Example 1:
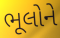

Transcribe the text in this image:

ભૂલોને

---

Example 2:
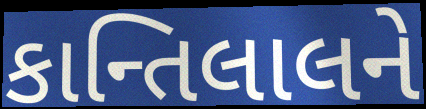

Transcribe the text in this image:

કાન્તિલાલને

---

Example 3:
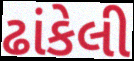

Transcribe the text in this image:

ઢાંકેલી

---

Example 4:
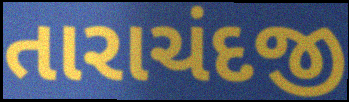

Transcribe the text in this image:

તારાચંદજી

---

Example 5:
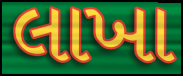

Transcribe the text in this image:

લાખા